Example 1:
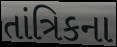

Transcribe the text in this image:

તાંત્રિકના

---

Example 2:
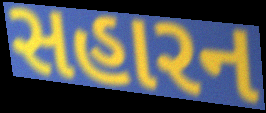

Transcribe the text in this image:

સહારન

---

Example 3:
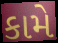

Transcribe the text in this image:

કામે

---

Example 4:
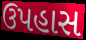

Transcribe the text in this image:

ઉપહાસ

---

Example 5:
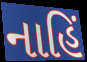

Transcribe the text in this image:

નાહિં